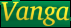
Vanga